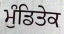
ਮੁੰਡਿਤੇਕ